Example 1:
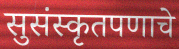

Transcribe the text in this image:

सुसंस्कृतपणाचे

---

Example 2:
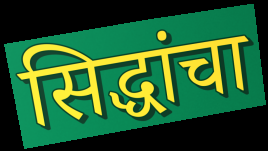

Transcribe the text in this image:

सिद्धांचा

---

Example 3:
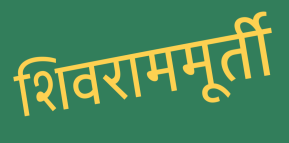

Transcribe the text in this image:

शिवराममूर्ती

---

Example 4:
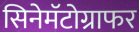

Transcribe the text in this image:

सिनेमॅटोग्राफर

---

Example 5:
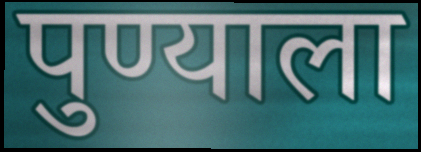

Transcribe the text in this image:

पुण्याला